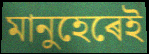
মানুহেৰেই